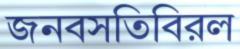
জনবসতিবিরল